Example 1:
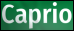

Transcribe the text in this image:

Caprio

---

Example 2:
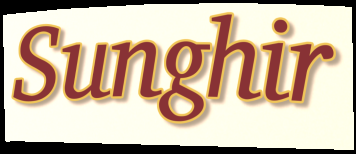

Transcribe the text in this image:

Sunghir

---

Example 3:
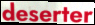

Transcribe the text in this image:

deserter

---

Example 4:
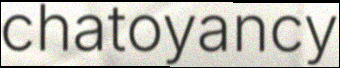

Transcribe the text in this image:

chatoyancy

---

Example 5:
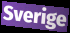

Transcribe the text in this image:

Sverige